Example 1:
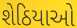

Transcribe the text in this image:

શેઠિયાઓ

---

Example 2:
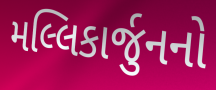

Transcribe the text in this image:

મલ્લિકાર્જુનનો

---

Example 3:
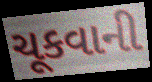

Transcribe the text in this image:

ચૂકવાની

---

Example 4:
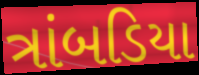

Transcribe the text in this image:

ત્રાંબડિયા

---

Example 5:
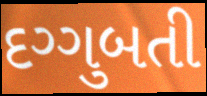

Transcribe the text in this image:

દગ્ગુબતી